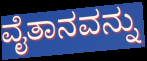
ವೈತಾನವನ್ನು